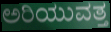
ಅರಿಯುವತ್ತ